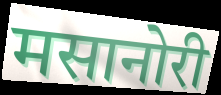
मसानोरी